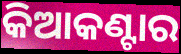
କିଆକଣ୍ଟାର